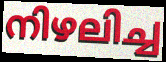
നിഴലിച്ച